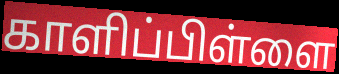
காளிப்பிள்ளை